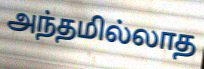
அந்தமில்லாத